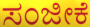
ಸಂಜೀಕೆ